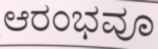
ಆರಂಭವೂ